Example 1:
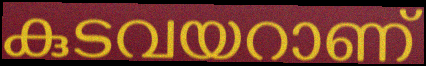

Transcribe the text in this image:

കുടവയറാണ്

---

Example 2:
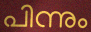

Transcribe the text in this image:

പിന്നും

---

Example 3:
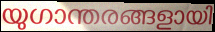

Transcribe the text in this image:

യുഗാന്തരങ്ങളായി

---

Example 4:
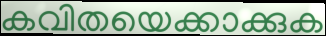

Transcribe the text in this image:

കവിതയെക്കാക്കുക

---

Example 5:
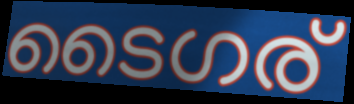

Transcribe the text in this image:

ടൈഗര്